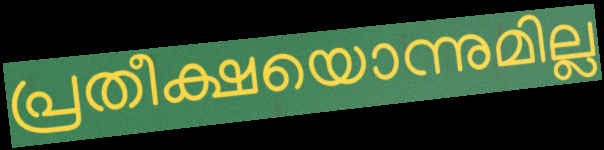
പ്രതീക്ഷയൊന്നുമില്ല